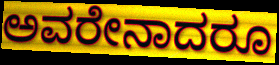
ಅವರೇನಾದರೂ